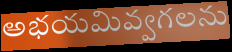
అభయమివ్వగలను